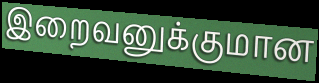
இறைவனுக்குமான